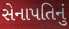
સેનાપતિનું